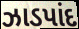
ઝાડપાંદ